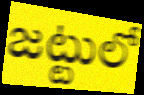
జట్టులో